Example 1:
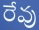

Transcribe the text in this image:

రేవు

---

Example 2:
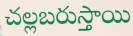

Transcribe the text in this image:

చల్లబరుస్తాయి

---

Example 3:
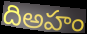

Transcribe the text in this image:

దిఅహం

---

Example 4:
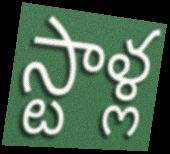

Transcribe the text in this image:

స్టాళ్ల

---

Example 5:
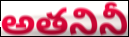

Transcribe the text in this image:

అతనినీ